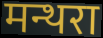
मन्थरा